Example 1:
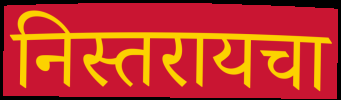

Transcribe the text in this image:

निस्तरायचा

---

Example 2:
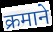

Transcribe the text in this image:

क्रमाने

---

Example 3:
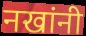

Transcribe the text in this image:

नखांनी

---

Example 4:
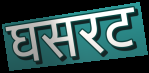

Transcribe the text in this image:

घसरट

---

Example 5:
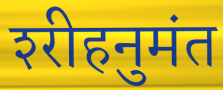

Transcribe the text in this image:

श्रीहनुमंत